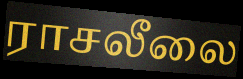
ராசலீலை